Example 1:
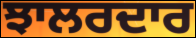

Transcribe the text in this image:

ਝਾਲਰਦਾਰ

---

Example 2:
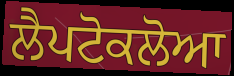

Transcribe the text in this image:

ਲੈਪਟੋਕਲੋਆ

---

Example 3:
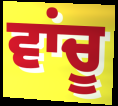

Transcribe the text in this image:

ਵਾਂਚੂ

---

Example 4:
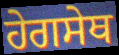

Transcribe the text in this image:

ਹੇਗਸੇਥ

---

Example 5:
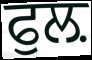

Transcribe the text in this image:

ਫੁਲ਼